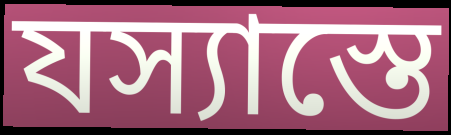
যস্যাস্তে